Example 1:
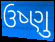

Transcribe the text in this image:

ઉષ્ણુ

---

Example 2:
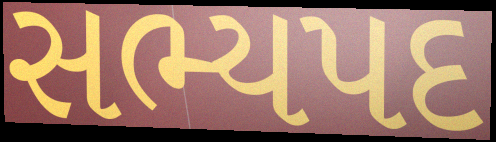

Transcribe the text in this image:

સભ્યપદ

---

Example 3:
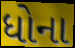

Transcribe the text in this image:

ધોના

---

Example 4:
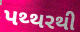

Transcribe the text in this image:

પથ્થરથી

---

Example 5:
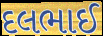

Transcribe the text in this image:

દલભાઈ